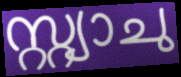
സ്റ്റ്യാചു